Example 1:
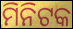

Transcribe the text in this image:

ମିନିଟକ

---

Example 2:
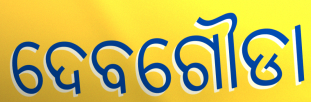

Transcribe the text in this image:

ଦେବଗୌଡା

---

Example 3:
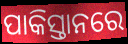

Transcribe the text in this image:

ପାକିସ୍ତାନରେ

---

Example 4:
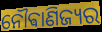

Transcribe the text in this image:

ନୌଵାଣିଜ୍ୟର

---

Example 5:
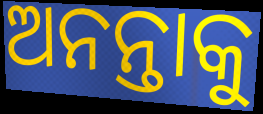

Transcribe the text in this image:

ଅନନ୍ତାକୁ